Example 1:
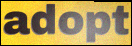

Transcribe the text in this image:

adopt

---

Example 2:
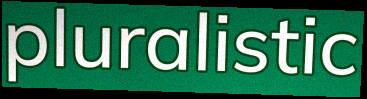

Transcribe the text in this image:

pluralistic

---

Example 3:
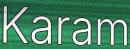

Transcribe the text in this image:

Karam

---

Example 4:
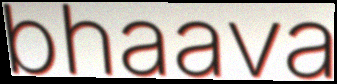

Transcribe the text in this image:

bhaava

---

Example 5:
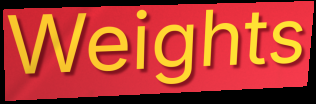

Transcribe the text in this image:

Weights